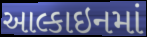
આલ્કાઇનમાં